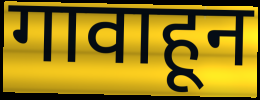
गावाहून